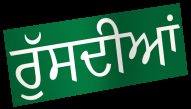
ਰੁੱਸਦੀਆਂ